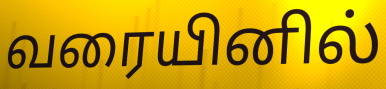
வரையினில்